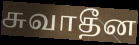
சுவாதீன